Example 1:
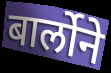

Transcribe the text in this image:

बार्लोने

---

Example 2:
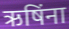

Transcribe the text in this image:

ऋषिंना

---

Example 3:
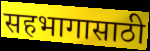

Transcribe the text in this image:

सहभागासाठी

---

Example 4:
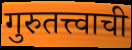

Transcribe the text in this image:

गुरुतत्त्वाची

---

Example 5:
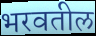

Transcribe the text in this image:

भरवतील